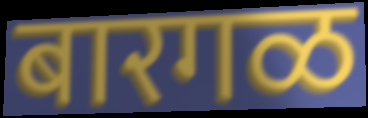
बारगळ